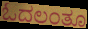
ಓದಲಂತೂ